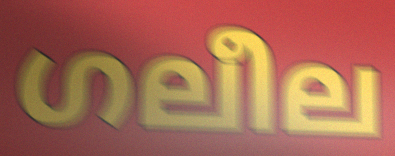
ഗലീല